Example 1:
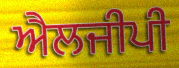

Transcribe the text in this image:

ਐਲਜੀਪੀ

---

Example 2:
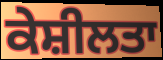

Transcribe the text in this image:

ਕੇਸ਼ੀਲਤਾ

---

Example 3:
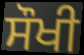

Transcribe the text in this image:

ਸੌਖੀ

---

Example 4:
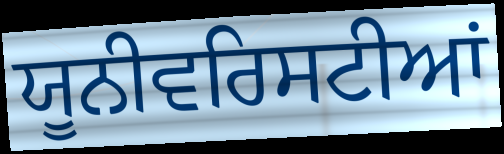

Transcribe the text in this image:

ਯੂਨੀਵਰਿਸਟੀਆਂ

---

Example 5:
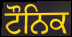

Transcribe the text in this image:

ਟੌਨਿਕ